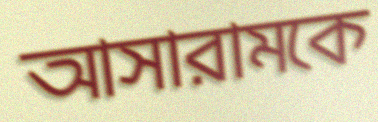
আসারামকে